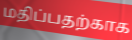
மதிப்பதற்காக